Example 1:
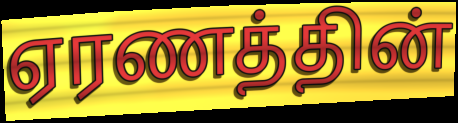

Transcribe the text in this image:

ஏரணத்தின்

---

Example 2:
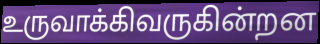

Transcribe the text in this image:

உருவாக்கிவருகின்றன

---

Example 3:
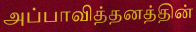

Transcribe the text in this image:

அப்பாவித்தனத்தின்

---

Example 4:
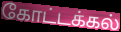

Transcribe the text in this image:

கோட்டக்கல்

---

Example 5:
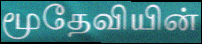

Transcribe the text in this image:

மூதேவியின்